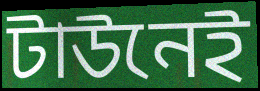
টাউনেই